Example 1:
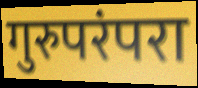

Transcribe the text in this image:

गुरुपरंपरा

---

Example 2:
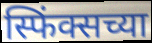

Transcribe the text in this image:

स्फिंक्सच्या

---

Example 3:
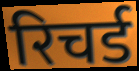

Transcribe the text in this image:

रिचर्ड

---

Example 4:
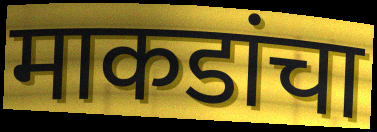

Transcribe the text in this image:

माकडांचा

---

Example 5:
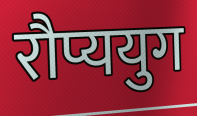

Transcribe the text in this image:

रौप्ययुग